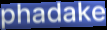
phadake